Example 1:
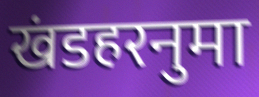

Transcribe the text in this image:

खंडहरनुमा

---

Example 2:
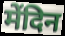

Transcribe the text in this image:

मेंदिन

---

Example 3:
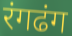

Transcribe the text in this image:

रंगढंग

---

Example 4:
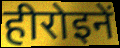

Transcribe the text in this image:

हीरोइनें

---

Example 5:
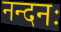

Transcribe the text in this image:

नन्दनः